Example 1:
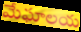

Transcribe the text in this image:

మేఘాలయ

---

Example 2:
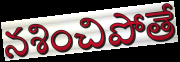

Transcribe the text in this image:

నశించిపోతే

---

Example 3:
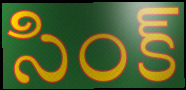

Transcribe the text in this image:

సింక్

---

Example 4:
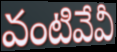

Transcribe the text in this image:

వంటివేవీ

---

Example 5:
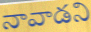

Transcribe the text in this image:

నావాడని